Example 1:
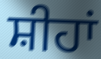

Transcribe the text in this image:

ਸ਼ੀਹਾਂ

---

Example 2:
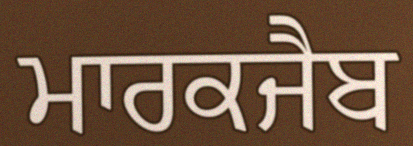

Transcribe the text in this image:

ਮਾਰਕਜੈਬ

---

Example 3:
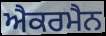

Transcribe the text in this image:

ਐਕਰਮੈਨ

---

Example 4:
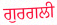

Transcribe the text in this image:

ਗੁਰਗਲੀ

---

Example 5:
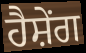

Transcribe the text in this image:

ਹੈਸ਼ੇਂਗ